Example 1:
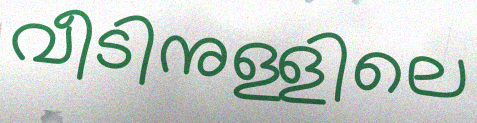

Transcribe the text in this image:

വീടിനുള്ളിലെ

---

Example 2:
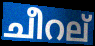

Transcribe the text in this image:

ചീറല്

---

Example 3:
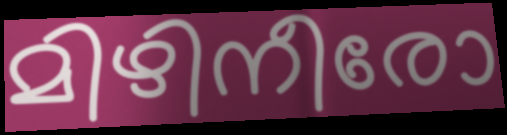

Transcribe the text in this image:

മിഴിനീരോ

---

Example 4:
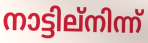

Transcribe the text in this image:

നാട്ടില്നിന്ന്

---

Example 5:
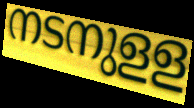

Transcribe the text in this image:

നടനുളള